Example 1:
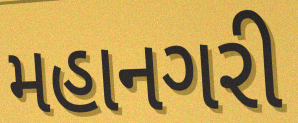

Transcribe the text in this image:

મહાનગરી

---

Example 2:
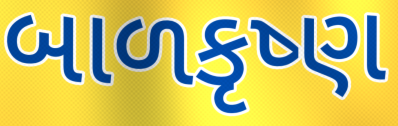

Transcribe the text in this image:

બાળકૃષ્ણ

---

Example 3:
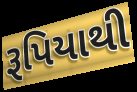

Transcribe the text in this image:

રૂપિયાથી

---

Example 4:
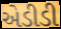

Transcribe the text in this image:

એડીડી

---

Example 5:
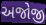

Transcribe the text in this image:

અજોજી